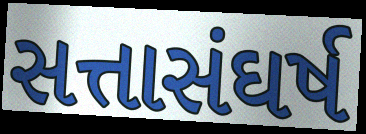
સત્તાસંઘર્ષ